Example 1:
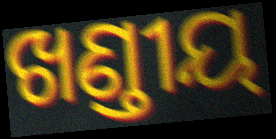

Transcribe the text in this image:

ଖଣ୍ଡୀୟ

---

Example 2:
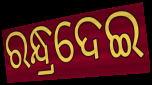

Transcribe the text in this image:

ରନ୍ଧ୍ରଦେଇ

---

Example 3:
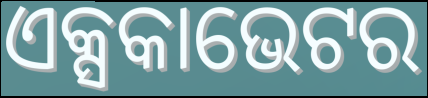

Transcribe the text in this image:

ଏକ୍ସକାଭେଟର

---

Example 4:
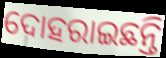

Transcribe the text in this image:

ଦୋହରାଇଛନ୍ତି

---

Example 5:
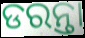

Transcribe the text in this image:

ଡରନ୍ତା